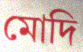
মোদি